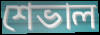
শেভাল